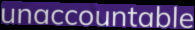
unaccountable